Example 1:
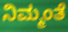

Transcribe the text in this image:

ನಿಮ್ಮಂತೆ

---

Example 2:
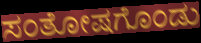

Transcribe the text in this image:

ಸಂತೋಷಗೊಂಡು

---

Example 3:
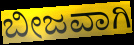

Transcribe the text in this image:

ಬೀಜವಾಗಿ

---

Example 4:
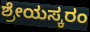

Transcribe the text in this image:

ಶ್ರೇಯಸ್ಕರಂ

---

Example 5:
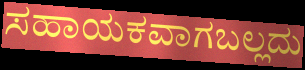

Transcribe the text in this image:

ಸಹಾಯಕವಾಗಬಲ್ಲದು